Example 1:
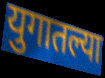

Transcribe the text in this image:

युगातल्या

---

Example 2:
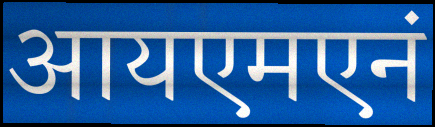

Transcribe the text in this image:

आयएमएनं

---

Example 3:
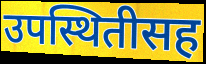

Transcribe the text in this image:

उपस्थितीसह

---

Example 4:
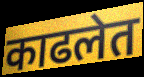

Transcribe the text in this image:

काढलेत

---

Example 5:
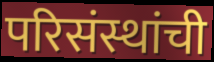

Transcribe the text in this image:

परिसंस्थांची